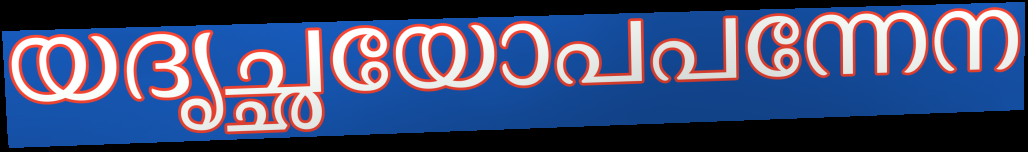
യദൃച്ഛയോപപന്നേന